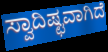
ಸ್ವಾದಿಷ್ಟವಾಗಿದೆ